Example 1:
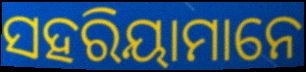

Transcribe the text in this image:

ସହରିୟାମାନେ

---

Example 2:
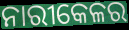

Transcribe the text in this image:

ନାରୀକେଳର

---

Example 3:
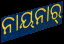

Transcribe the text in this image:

ନାୟନାର୍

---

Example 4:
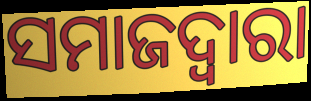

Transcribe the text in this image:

ସମାଜଦ୍ଵାରା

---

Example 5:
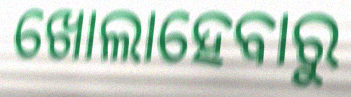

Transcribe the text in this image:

ଖୋଲାହେବାରୁ